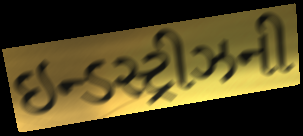
ઇન્ડસ્ટ્રીઝની